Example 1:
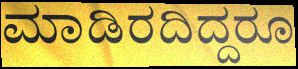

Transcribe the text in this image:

ಮಾಡಿರದಿದ್ದರೂ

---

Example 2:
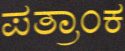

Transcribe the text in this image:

ಪತ್ರಾಂಕ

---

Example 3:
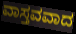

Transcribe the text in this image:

ವಾಸ್ತವವಾದ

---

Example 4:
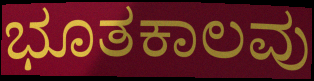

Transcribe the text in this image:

ಭೂತಕಾಲವು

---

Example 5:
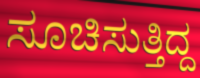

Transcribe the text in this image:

ಸೂಚಿಸುತ್ತಿದ್ದ